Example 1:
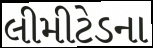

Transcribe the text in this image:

લીમીટેડના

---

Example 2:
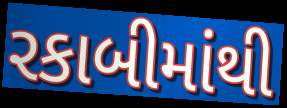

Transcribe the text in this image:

રકાબીમાંથી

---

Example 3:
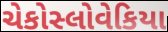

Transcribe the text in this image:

ચેકોસ્લોવેકિયા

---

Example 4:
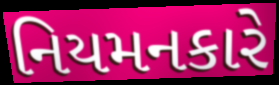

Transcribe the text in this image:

નિયમનકારે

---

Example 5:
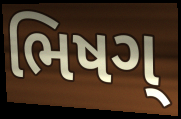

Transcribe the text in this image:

ભિષગ્